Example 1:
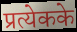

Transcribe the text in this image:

प्रत्येकके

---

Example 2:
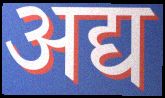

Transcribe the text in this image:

अद्य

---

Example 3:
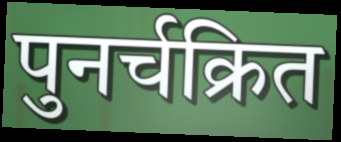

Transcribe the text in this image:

पुनर्चक्रित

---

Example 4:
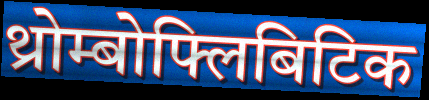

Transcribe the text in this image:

थ्रोम्बोफ्लिबिटिक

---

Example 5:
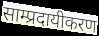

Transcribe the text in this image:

साम्प्रदायीकरण